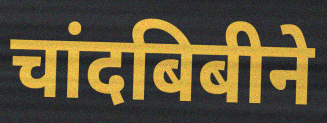
चांदबिबीने